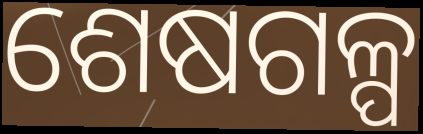
ଶେଷଗଳ୍ପ